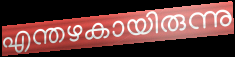
എന്തഴകായിരുന്നു